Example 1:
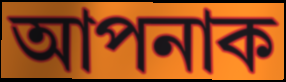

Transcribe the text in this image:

আপনাক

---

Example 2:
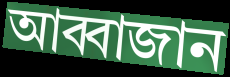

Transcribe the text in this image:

আব্বাজান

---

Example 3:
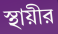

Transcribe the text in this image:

স্থায়ীর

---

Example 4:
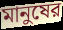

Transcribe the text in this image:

মানুষের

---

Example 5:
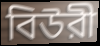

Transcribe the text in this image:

বিউরী